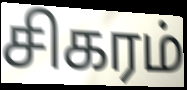
சிகரம்